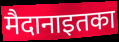
मैदानाइतका